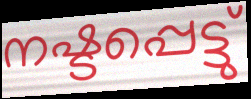
നഷ്ടപ്പെട്ടു്